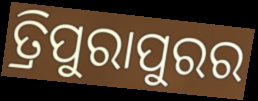
ତ୍ରିପୁରାପୁରର